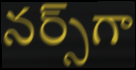
నర్స్‌గా